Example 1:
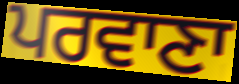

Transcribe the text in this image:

ਪਰਵਾਣਾ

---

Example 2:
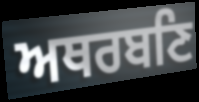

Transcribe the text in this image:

ਅਥਰਬਣਿ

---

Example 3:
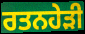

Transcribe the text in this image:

ਰਤਨਹੇੜੀ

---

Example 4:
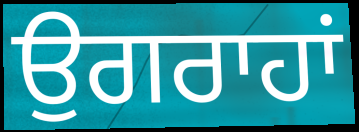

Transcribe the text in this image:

ਉਗਰਾਹਾਂ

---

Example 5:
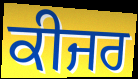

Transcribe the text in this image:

ਕੀਜਰ